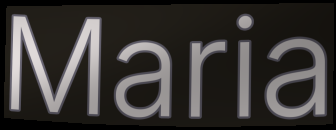
Maria